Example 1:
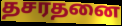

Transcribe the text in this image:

தசரதனை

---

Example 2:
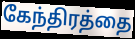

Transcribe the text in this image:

கேந்திரத்தை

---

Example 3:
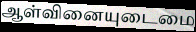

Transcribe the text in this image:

ஆள்வினையுடைமை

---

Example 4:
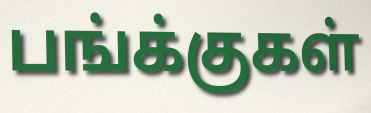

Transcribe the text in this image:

பங்க்குகள்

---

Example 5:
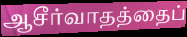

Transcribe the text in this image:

ஆசீர்வாதத்தைப்